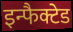
इन्फैक्टेड